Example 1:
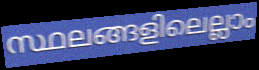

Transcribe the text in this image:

സ്ഥലങ്ങളിലെല്ലാം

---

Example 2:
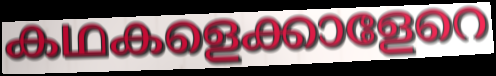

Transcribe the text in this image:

കഥകളെക്കാളേറെ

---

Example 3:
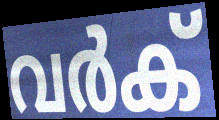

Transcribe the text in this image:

വർക്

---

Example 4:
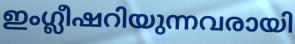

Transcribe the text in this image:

ഇംഗ്ലീഷറിയുന്നവരായി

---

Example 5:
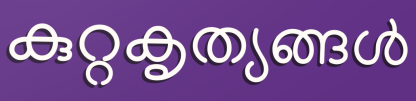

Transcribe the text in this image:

കുറ്റകൃത്യങ്ങൾ